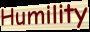
Humility